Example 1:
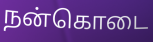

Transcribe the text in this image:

நன்கொடை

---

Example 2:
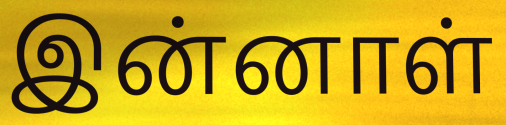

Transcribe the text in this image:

இன்னாள்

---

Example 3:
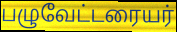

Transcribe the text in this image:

பழுவேட்டரையர்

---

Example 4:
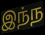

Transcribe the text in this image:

இந்ந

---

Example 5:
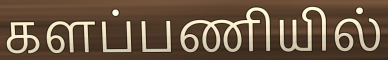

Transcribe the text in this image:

களப்பணியில்